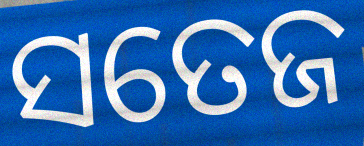
ସତେଜ